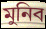
মুনিব